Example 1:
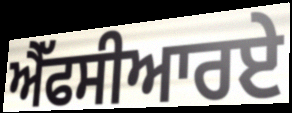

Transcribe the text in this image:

ਐੱਫਸੀਆਰਏ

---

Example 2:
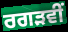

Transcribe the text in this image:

ਰਗੜਵੀਂ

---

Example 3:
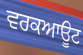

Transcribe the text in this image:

ਵਰਕਆਊਟ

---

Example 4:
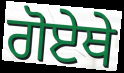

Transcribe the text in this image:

ਗੋਏਥੇ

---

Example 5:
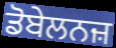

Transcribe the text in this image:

ਡੋਬੇਲਨਜ਼